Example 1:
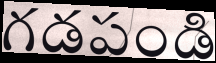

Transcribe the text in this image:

గడపండి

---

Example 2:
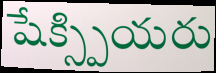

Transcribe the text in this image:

షేక్స్పియరు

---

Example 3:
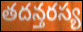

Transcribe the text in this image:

తదన్తరస్య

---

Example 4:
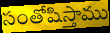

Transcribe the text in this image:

సంతోషిస్తాము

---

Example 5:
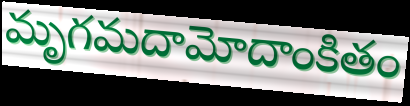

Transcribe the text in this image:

మృగమదామోదాంకితం